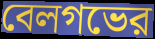
বেলগভের